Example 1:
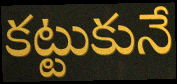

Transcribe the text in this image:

కట్టుకునే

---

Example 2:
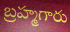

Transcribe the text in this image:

బ్రహ్మగారు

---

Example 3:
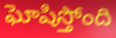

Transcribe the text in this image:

ఘోషిస్తోంది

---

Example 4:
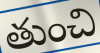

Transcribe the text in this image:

తుంచి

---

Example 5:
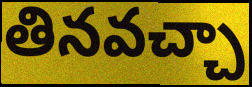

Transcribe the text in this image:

తినవచ్చా